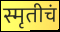
स्मृतीचं